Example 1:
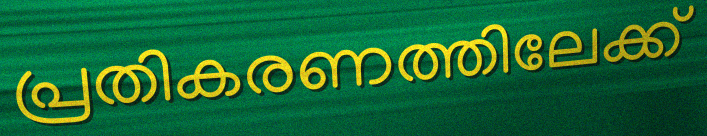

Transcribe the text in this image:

പ്രതികരണത്തിലേക്ക്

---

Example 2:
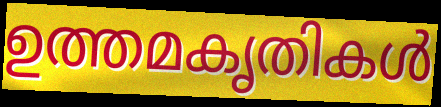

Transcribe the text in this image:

ഉത്തമകൃതികൾ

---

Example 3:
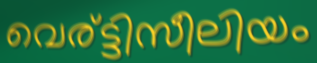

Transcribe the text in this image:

വെര്ട്ടിസീലിയം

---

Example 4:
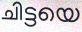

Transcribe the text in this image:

ചിട്ടയെ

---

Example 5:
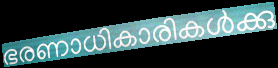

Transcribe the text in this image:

ഭരണാധികാരികൾക്കു